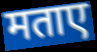
मताए